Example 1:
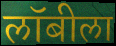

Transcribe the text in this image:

लॉबीला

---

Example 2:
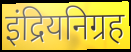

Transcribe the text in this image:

इंद्रियनिग्रह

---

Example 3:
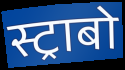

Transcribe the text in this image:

स्ट्राबो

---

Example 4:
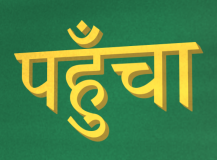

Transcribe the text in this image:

पहुँचा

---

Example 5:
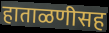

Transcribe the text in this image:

हाताळणीसह